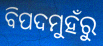
ବିପଦମୁହଁରୁ